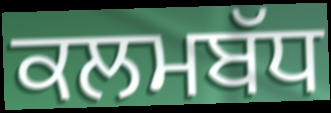
ਕਲਮਬੱਧ